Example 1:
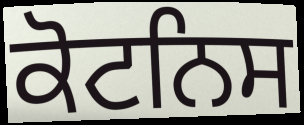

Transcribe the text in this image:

ਕੋਟਨਿਸ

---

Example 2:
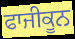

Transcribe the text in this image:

ਫਾਜੀਕੂਨ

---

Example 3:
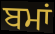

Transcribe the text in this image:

ਬਮਾਂ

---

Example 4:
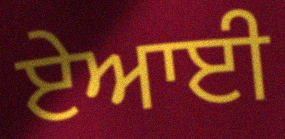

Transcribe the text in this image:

ਏਆਈ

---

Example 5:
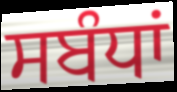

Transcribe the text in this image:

ਸਬੰਧਾਂ